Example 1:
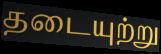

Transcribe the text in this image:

தடையுற்று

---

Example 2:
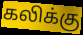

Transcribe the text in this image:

கலிக்கு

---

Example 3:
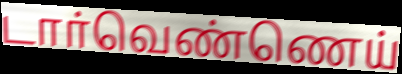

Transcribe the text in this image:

டார்வெண்ணெய்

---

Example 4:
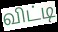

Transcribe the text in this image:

விட்டி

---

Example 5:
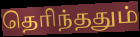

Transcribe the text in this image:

தெரிந்ததும்